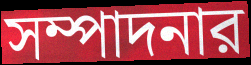
সম্পাদনার